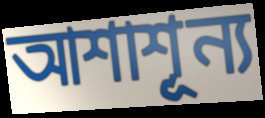
আশাশূন্য